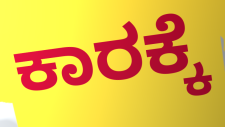
ಕಾರಕ್ಕೆ